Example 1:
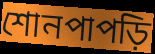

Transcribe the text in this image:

শোনপাপড়ি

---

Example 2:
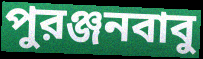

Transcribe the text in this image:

পুরঞ্জনবাবু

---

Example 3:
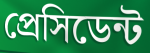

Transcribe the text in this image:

প্রেসিডেন্ট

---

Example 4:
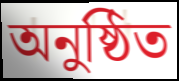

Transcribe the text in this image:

অনুষ্ঠিত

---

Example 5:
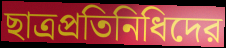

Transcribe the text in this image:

ছাত্রপ্রতিনিধিদের